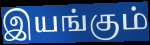
இயங்கும்